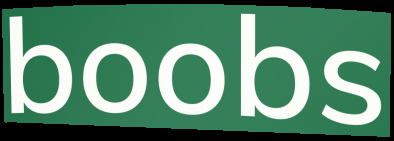
boobs